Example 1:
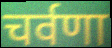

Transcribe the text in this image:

चर्वणा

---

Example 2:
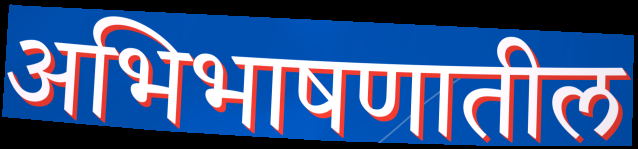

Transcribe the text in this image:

अभिभाषणातील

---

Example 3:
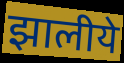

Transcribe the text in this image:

झालीये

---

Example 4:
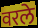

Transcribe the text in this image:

वरले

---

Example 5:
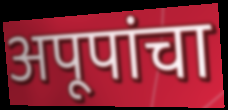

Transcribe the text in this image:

अपूपांचा